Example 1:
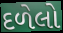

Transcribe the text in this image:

દળેલો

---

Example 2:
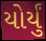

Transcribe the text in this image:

યોર્યું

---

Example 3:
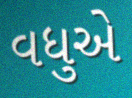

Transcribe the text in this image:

વધુએ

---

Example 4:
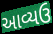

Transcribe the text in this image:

આવ્યઉ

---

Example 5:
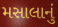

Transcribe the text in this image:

મસાલાનું